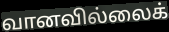
வானவில்லைக்